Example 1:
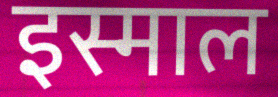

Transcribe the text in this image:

इस्माल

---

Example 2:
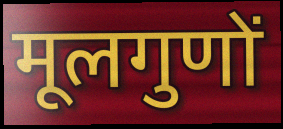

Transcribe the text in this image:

मूलगुणों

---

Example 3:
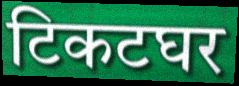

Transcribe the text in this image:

टिकटघर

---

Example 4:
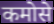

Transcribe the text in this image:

कमोसे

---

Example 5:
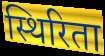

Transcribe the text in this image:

स्थिरिता